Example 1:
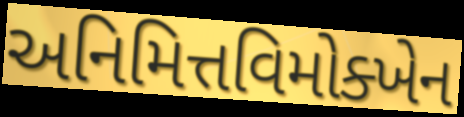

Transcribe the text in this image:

અનિમિત્તવિમોક્ખેન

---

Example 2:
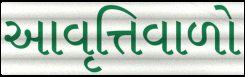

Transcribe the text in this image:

આવૃત્તિવાળો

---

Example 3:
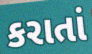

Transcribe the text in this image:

કરાતાં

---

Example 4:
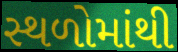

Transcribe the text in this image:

સ્થળોમાંથી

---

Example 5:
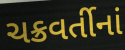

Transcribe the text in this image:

ચક્રવર્તીનાં